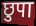
छुपा